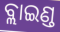
ବ୍ଲାଇଣ୍ଡ